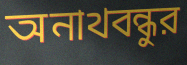
অনাথবন্ধুর